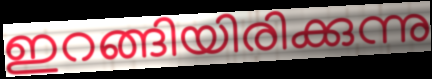
ഇറങ്ങിയിരിക്കുന്നു